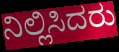
ನಿಲ್ಲಿಸಿದರು